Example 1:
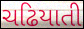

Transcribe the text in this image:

ચઢિયાતી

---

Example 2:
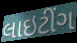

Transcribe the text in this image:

લાઇટીંગ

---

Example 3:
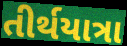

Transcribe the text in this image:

તીર્થયાત્રા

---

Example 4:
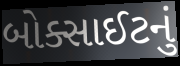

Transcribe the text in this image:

બોક્સાઈટનું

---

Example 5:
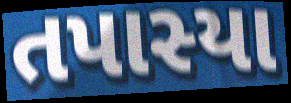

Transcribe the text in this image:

તપાસ્યા